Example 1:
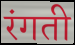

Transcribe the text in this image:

रंगती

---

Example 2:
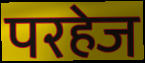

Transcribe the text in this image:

परहेज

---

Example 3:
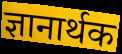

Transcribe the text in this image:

ज्ञानार्थक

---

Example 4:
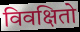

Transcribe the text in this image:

विवक्षितो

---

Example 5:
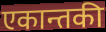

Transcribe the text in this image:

एकान्तकी